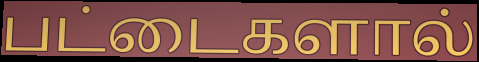
பட்டைகளால்